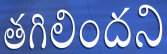
తగిలిందని